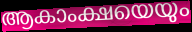
ആകാംക്ഷയെയും